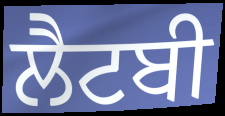
ਲੈਟਬੀ